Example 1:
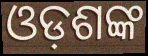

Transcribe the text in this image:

ଓଡ଼ଶଙ୍କ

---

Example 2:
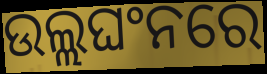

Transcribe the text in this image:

ଉଲ୍ଲଘଂନରେ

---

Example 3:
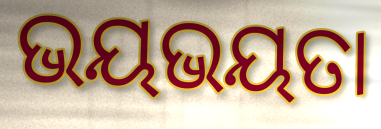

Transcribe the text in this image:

ଭୟଭୟତା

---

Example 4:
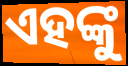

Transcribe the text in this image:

ଏହଙ୍କୁ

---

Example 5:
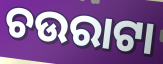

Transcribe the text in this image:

ଚଉରାଟା